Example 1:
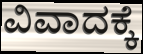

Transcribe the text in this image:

ವಿವಾದಕ್ಕೆ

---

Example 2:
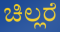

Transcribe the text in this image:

ಚಿಲ್ಲರೆ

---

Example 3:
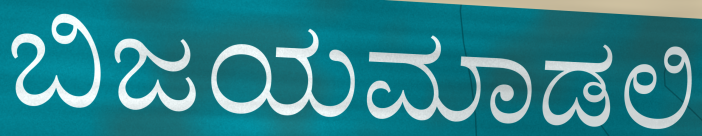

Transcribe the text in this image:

ಬಿಜಯಮಾಡಲಿ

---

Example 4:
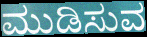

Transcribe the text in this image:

ಮುಡಿಸುವ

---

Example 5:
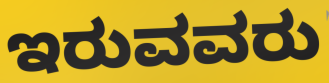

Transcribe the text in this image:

ಇರುವವರು